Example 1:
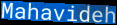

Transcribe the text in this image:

Mahavideh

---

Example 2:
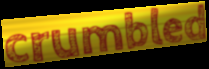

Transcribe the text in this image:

crumbled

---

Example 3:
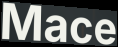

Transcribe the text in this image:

Mace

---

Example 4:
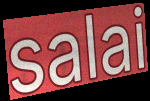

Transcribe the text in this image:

salai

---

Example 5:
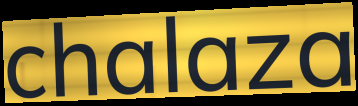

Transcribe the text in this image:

chalaza